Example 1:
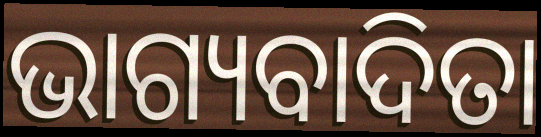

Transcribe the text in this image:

ଭାଗ୍ୟବାଦିତା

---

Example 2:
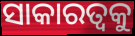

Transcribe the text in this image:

ସାକାରତ୍ଵକୁ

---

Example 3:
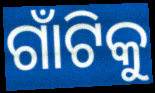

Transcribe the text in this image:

ଗାଁଟିକୁ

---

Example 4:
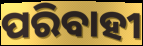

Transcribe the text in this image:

ପରିବାହୀ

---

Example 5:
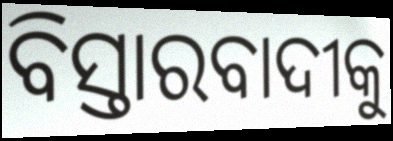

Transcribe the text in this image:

ବିସ୍ତାରବାଦୀକୁ